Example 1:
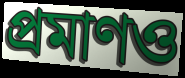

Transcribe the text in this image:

প্রমাণও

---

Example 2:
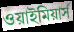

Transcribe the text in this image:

ওয়াইমিয়ার্স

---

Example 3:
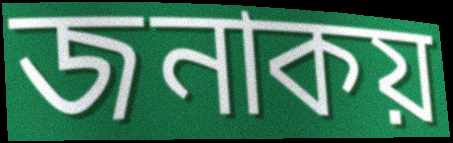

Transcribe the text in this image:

জনাকয়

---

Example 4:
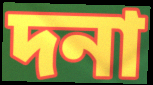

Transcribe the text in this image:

দনা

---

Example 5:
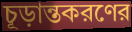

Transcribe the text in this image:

চূড়ান্তকরণের